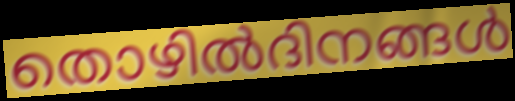
തൊഴിൽദിനങ്ങൾ